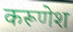
करूणेश